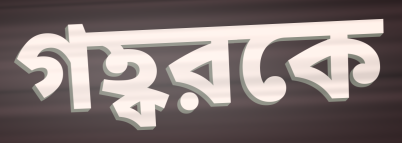
গহ্বরকে